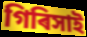
গিৰিসাই